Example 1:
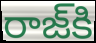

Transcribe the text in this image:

రాజ్‌కి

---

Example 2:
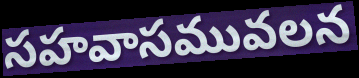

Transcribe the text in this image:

సహవాసమువలన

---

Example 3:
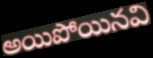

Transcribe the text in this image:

అయిపోయినవి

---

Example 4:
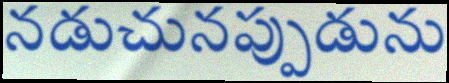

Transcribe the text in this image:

నడుచునప్పుడును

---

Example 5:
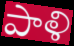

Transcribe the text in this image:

పాళి